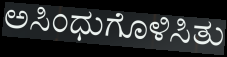
ಅಸಿಂಧುಗೊಳಿಸಿತು